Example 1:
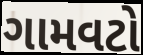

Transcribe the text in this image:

ગામવટો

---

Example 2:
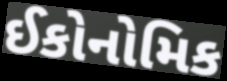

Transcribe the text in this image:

ઈકોનોમિક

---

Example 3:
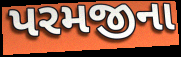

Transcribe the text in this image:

પરમજીના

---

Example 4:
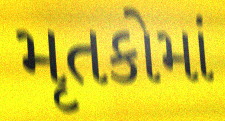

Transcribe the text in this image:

મૃતકોમાં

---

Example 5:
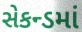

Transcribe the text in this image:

સેકન્ડમાં